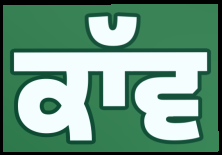
ਕਾੱਵ